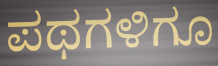
ಪಥಗಳಿಗೂ